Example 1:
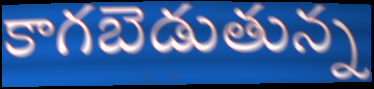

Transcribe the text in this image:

కాగబెడుతున్న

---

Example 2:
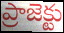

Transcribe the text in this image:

ప్రాజెక్టు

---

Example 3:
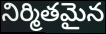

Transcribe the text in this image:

నిర్మితమైన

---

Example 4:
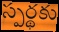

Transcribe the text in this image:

స్పర్థకు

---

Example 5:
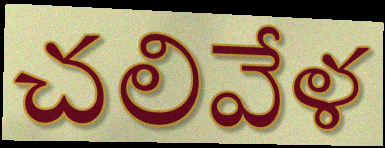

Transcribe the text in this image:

చలివేళ